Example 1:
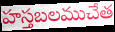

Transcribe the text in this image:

హస్తబలముచేత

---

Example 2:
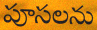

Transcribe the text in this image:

పూసలను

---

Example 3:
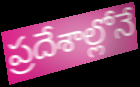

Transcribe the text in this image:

ప్రదేశాల్లోనే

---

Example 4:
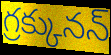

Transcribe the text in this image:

గ్రక్కునన్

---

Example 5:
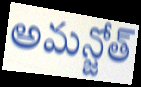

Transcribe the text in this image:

అమన్జోత్